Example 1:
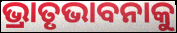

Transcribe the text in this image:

ଭ୍ରାତୃଭାବନାକୁ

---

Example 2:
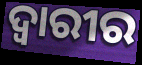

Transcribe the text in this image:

ଦ୍ୱାରୀର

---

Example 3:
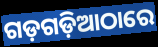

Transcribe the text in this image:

ଗଡ଼ଗଡ଼ିଆଠାରେ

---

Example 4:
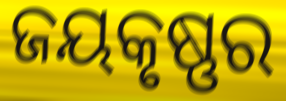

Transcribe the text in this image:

ଜୟକୃଷ୍ଣର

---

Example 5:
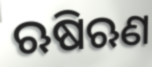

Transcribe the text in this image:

ଋଷିଋଣ